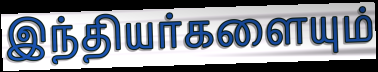
இந்தியர்களையும்